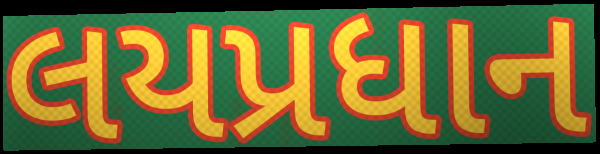
લયપ્રધાન